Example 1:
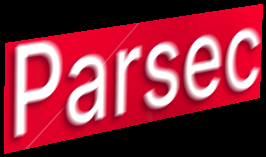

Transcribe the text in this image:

Parsec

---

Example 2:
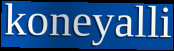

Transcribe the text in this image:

koneyalli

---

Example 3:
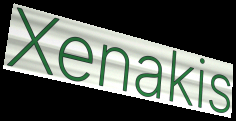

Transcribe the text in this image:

Xenakis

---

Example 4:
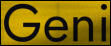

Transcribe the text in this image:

Geni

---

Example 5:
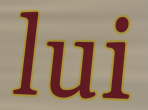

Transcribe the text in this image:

lui